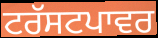
ਟਰੱਸਟਪਾਵਰ